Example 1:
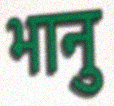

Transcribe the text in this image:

भानु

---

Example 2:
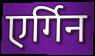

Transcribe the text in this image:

एर्गिन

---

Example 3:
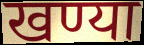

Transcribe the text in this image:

खण्या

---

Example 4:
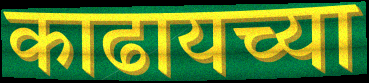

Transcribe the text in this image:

काढायच्या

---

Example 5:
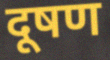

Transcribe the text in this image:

दूषण